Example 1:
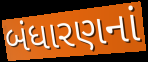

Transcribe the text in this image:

બંધારણનાં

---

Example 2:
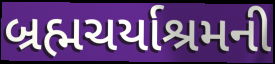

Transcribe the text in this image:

બ્રહ્મચર્યાશ્રમની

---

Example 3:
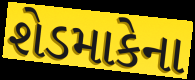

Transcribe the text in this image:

શેડમાકેના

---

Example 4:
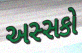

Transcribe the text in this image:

અસ્સકો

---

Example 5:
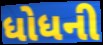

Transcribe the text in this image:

ધોધની